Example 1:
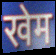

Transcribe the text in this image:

खेम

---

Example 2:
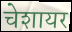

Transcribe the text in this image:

चेशायर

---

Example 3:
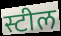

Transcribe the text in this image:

स्टील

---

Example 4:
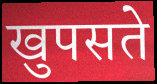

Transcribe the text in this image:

खुपसते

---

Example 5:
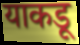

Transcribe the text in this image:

याकडू